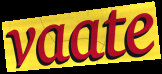
vaate